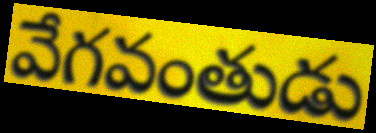
వేగవంతుడు